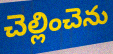
చెల్లించెను